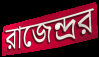
রাজেন্দ্রর